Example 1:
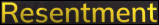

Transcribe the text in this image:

Resentment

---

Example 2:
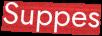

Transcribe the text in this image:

Suppes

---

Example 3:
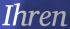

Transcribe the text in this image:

Ihren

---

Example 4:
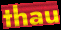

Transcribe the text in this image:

thau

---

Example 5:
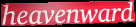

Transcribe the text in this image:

heavenward